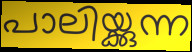
പാലിയ്ക്കുന്ന